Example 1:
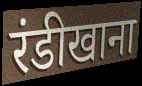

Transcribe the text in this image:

रंडीखाना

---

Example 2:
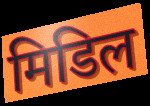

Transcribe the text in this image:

मिडिल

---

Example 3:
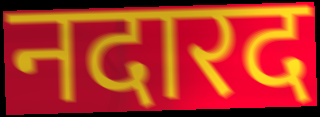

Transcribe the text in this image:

नदारद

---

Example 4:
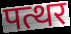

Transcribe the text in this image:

पत्थर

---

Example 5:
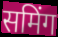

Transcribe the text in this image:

समिंग